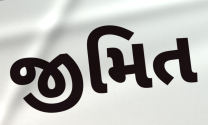
જીમિત